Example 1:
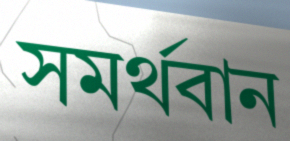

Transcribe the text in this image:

সমর্থবান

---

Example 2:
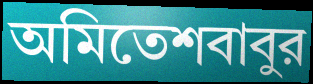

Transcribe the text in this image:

অমিতেশবাবুর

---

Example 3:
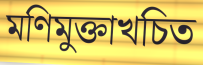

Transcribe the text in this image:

মণিমুক্তাখচিত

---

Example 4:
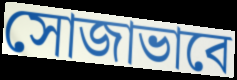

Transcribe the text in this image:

সোজাভাবে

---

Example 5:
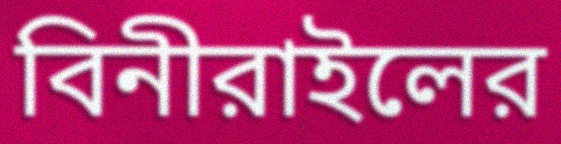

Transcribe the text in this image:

বিনীরাইলের